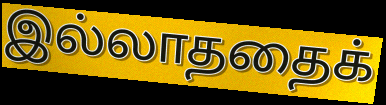
இல்லாததைக்